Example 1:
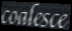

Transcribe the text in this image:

coalesce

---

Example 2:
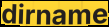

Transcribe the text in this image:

dirname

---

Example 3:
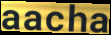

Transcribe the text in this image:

aacha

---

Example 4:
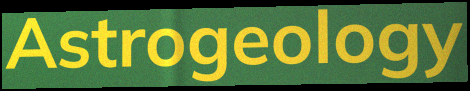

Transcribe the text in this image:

Astrogeology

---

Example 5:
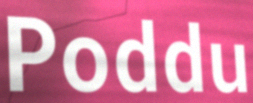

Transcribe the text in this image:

Poddu